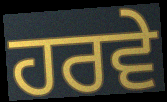
ਹਰਵੇ